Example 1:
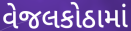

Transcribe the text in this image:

વેજલકોઠામાં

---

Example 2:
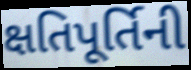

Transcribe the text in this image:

ક્ષતિપૂર્તિની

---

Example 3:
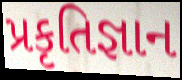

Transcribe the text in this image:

પ્રકૃતિજ્ઞાન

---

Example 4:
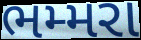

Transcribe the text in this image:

ભમ્મરા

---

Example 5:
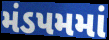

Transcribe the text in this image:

મંડપમમાં